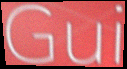
Gui